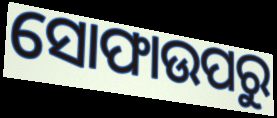
ସୋଫାଉପରୁ